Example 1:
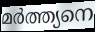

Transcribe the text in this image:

മർത്ത്യനെ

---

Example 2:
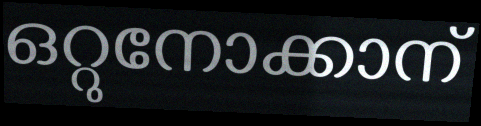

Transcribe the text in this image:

ഒറ്റുനോക്കാന്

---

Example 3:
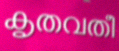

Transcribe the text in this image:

കൃതവതീ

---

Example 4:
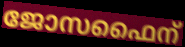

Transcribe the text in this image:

ജോസഫൈന്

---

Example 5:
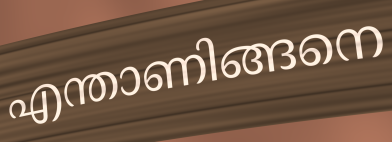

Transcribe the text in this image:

എന്താണിങ്ങനെ